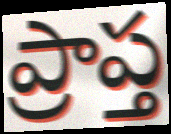
ప్రాప్త